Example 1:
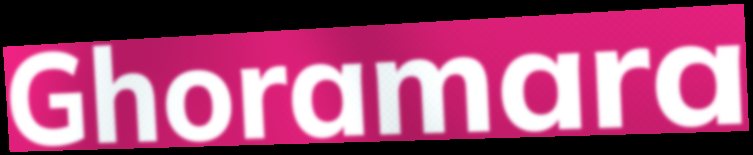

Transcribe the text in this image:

Ghoramara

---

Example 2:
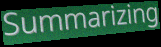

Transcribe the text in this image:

Summarizing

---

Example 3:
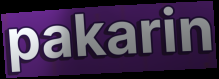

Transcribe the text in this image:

pakarin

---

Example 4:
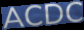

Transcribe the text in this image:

ACDC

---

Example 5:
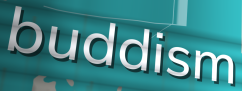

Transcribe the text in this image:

buddism